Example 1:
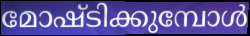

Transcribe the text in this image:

മോഷ്ടിക്കുമ്പോൾ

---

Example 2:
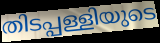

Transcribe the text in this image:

തിടപ്പള്ളിയുടെ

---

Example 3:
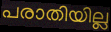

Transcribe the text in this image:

പരാതിയില്ല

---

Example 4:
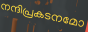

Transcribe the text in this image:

നന്ദിപ്രകടനമോ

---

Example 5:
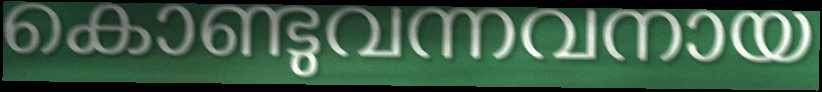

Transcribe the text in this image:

കൊണ്ടുവന്നവനായ